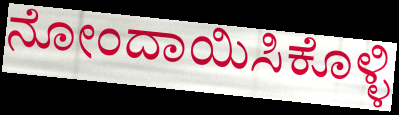
ನೋಂದಾಯಿಸಿಕೊಳ್ಳಿ